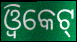
ଓ୍ଵିକେଟ୍